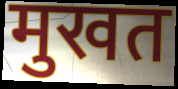
मुखत